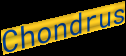
Chondrus